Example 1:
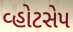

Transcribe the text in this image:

વ્હોટસેપ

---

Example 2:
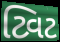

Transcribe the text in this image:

ટ્વિટ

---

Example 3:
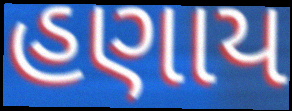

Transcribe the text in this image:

હણાય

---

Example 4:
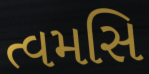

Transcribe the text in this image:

ત્વમસિ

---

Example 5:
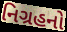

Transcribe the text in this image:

નિગ્રહનો